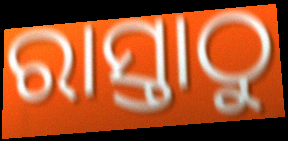
ରାସ୍ତାଠୁ